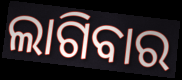
ଲାଗିବାର